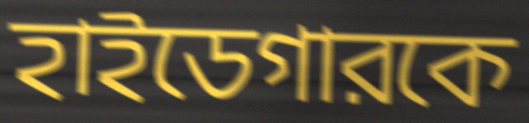
হাইডেগারকে